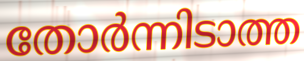
തോർന്നിടാത്ത